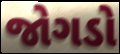
જોગડો